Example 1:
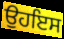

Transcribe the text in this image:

ਉਹਇਸ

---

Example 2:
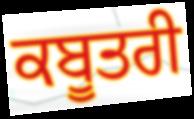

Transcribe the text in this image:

ਕਬੂਤਰੀ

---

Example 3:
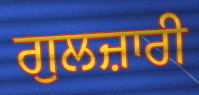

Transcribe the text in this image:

ਗੁਲਜ਼ਾਰੀ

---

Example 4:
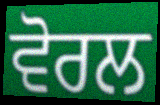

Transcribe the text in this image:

ਵੋਰਲ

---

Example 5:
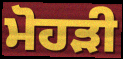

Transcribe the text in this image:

ਮੋਹੜੀ